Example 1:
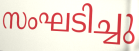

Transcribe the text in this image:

സംഘടിച്ചു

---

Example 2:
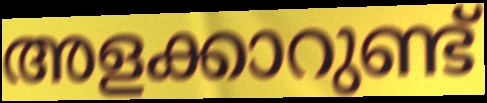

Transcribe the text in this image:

അളക്കാറുണ്ട്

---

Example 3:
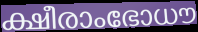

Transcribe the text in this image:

ക്ഷീരാംഭോധൗ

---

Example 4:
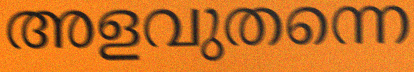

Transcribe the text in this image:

അളവുതന്നെ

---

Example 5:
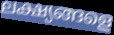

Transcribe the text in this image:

ലക്ഷ്യങ്ങളെ